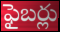
ఫైబర్లు